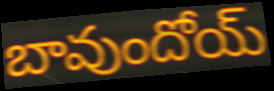
బావుందోయ్